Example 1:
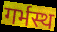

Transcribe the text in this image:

गर्भस्थ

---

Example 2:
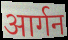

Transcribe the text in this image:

आर्गन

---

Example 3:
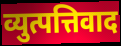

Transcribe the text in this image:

व्युत्पत्तिवाद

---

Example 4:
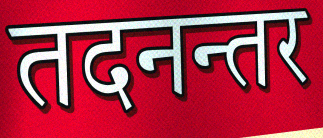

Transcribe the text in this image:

तदनन्तर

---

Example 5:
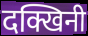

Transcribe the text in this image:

दक्खिनी